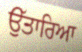
ਉੱਤਾਰਿਆ